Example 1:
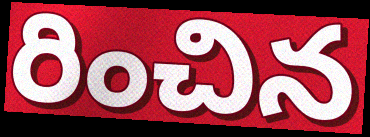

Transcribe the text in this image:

రించిన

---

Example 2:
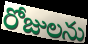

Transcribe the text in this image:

రోజులను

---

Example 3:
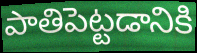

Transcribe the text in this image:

పాతిపెట్టడానికి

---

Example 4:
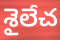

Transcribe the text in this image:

శైలేచ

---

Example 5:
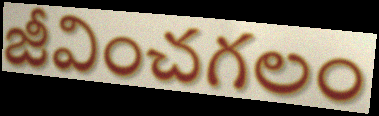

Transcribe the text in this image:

జీవించగలం